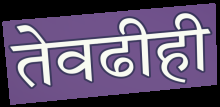
तेवढीही